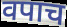
वपाच